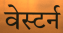
वेस्‍टर्न